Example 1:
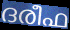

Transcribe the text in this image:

ദരീഫ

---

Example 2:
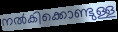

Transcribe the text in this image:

നൽകിക്കൊണ്ടുള്ള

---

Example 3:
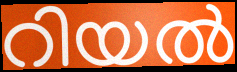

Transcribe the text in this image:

റിയൽ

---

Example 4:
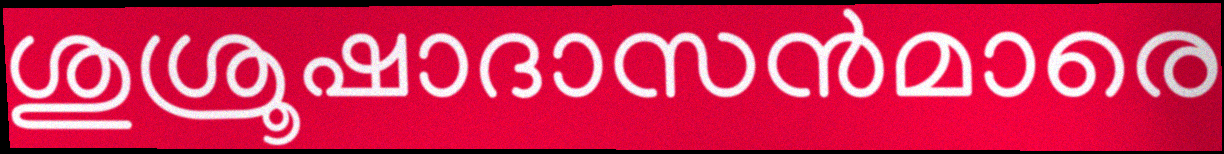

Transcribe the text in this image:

ശുശ്രൂഷാദാസൻമാരെ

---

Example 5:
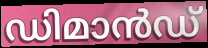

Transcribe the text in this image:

ഡിമാൻഡ്